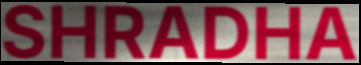
SHRADHA